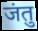
जंतु